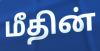
மீதின்